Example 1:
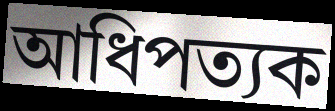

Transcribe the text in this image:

আধিপত্যক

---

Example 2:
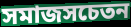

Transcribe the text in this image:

সমাজসচেতন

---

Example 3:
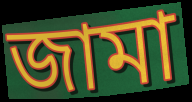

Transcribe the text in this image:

জামা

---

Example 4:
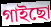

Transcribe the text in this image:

গাইছো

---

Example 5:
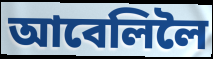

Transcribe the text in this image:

আবেলিলৈ